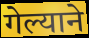
गेल्‍याने